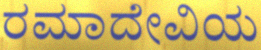
ರಮಾದೇವಿಯ